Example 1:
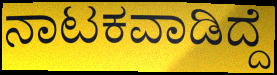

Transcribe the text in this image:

ನಾಟಕವಾಡಿದ್ದೆ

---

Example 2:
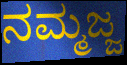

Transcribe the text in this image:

ನಮ್ಮಜ್ಜ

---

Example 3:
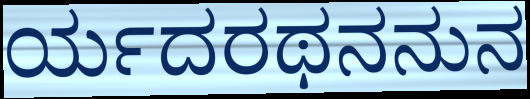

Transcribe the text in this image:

ರ್ಯದರಥನನುನ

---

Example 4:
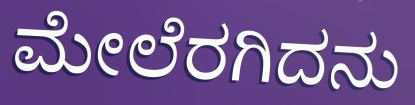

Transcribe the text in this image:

ಮೇಲೆರಗಿದನು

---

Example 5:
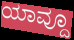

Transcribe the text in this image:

ಯಾವ್ದೂ